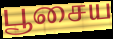
பூசைய